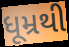
ધૂમ્રથી